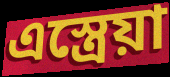
এস্ত্রেয়া